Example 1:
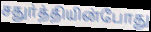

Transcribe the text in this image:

சதுர்த்தியின்போது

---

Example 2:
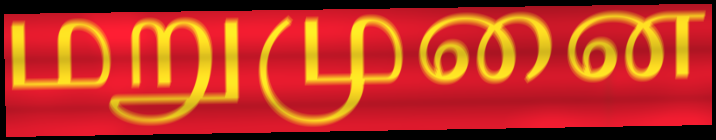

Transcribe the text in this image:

மறுமுனை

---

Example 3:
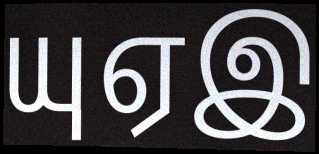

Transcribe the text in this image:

யுஏஇ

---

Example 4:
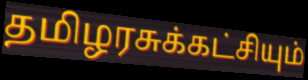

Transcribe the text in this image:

தமிழரசுக்கட்சியும்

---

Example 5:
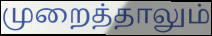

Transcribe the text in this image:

முறைத்தாலும்